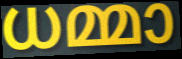
ധമ്മാ